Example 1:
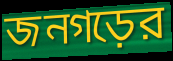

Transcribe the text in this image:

জনগড়ের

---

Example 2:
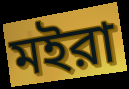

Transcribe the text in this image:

মইরা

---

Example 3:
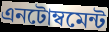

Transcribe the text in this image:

এনটোম্বমেন্ট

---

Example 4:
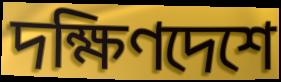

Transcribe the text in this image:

দক্ষিণদেশে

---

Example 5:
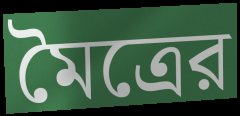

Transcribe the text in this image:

মৈত্রের